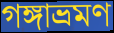
গঙ্গাভ্রমণ